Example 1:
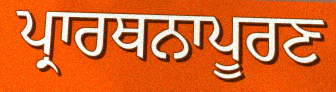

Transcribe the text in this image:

ਪ੍ਰਾਰਥਨਾਪੂਰਣ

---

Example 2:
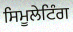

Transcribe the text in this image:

ਸਿਮੂਲੇਟਿੰਗ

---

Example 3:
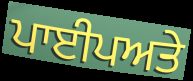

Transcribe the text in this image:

ਪਾਈਪਅਤੇ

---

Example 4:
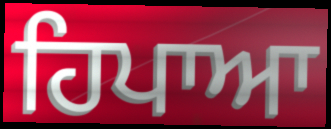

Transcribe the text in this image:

ਹਿਪਾਆ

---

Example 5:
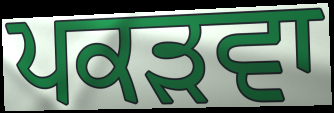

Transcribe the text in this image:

ਪਕੜਵਾ